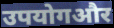
उपयोगऔर